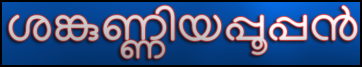
ശങ്കുണ്ണിയപ്പൂപ്പൻ